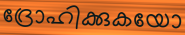
ദ്രോഹിക്കുകയോ